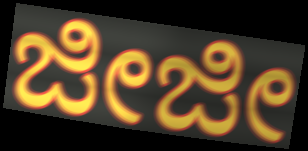
ಜೀಜೀ